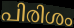
പിരിശം